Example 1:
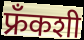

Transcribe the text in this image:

फ्रँकशी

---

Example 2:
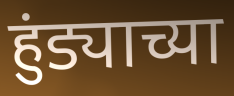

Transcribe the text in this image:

हुंड्याच्या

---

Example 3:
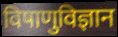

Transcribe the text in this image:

विषाणुविज्ञान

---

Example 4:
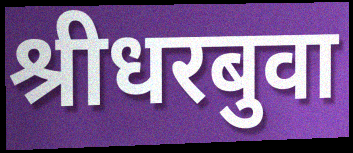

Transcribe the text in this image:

श्रीधरबुवा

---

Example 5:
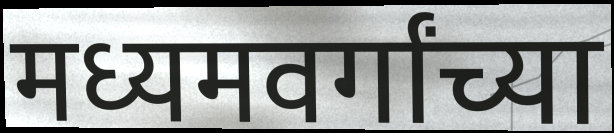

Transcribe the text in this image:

मध्यमवर्गांच्या